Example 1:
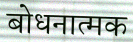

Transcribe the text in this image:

बोधनात्मक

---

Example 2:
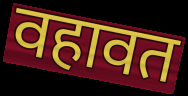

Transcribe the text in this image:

वहावत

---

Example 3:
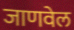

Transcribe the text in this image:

जाणवेल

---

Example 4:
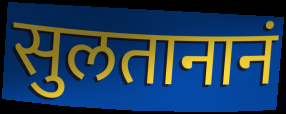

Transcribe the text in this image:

सुलतानानं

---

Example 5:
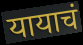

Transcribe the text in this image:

यायाचं